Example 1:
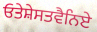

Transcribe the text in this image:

ਓਤੇਸ਼ੇਸਤਵੈਨਿਏ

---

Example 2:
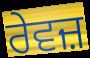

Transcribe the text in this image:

ਰੇਵਜ਼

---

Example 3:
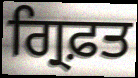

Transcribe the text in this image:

ਗ੍ਰਿਫ਼ਤ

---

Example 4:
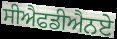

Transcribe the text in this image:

ਸੀਐਫਡੀਐਨਏ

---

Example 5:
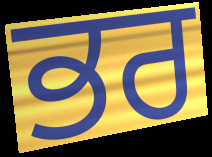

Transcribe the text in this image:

ਭਰ